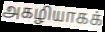
அகழியாகக்